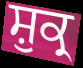
ਸ਼ੁਕ੍ਰ